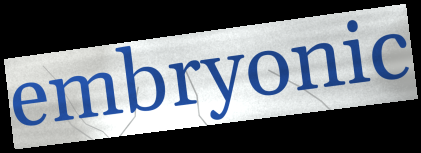
embryonic